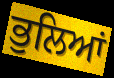
ਭੁਲਿਆਂ